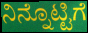
ನಿನ್ನೊಟ್ಟಿಗೆ